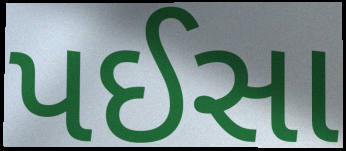
પઈસા